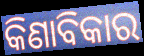
କିଣାବିକାର